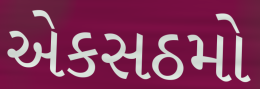
એકસઠમો